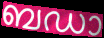
ബഡാ